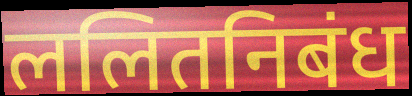
ललितनिबंध